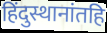
हिंदुस्थानांतहि